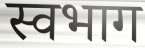
स्वभाग